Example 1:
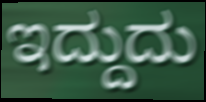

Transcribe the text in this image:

ಇದ್ದುದು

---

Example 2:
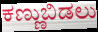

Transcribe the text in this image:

ಕಣ್ಣುಬಿಡಲು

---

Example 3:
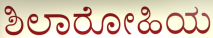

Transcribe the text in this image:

ಶಿಲಾರೋಹಿಯ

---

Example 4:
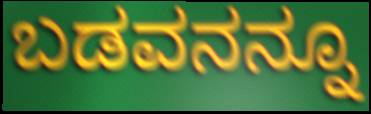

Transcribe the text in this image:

ಬಡವನನ್ನೂ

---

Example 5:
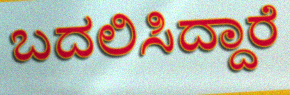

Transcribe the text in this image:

ಬದಲಿಸಿದ್ದಾರೆ